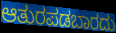
ಆತುರಪಡಬಾರದು